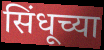
सिंधूच्या